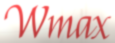
Wmax